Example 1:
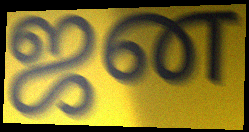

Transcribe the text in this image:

ஜன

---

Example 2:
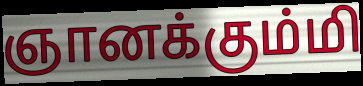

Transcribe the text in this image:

ஞானக்கும்மி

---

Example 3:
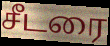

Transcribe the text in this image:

சீடரை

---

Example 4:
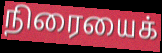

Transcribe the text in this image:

நிரையைக்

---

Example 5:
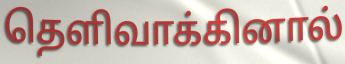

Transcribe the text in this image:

தெளிவாக்கினால்